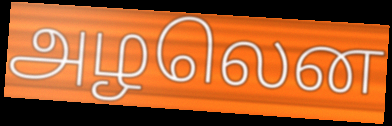
அழலென